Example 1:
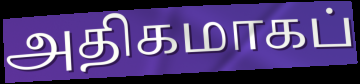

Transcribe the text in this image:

அதிகமாகப்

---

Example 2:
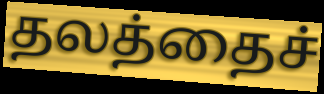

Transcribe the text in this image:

தலத்தைச்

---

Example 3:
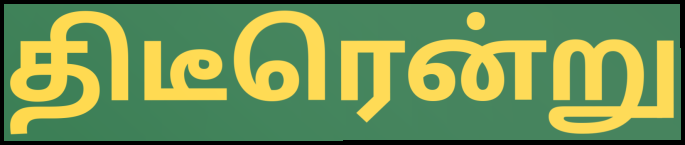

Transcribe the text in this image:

திடீரென்று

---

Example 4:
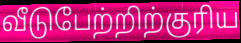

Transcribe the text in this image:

வீடுபேற்றிற்குரிய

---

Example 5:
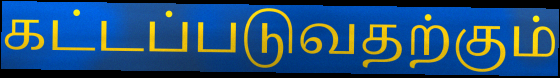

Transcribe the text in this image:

கட்டப்படுவதற்கும்